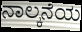
ನಾಲ್ಕನೆಯ